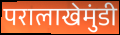
परालाखेमुंडी